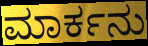
ಮಾರ್ಕನು